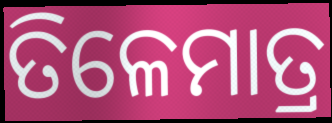
ତିଳେମାତ୍ର